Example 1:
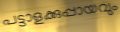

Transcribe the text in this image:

പട്ടാളക്കുപ്പായവും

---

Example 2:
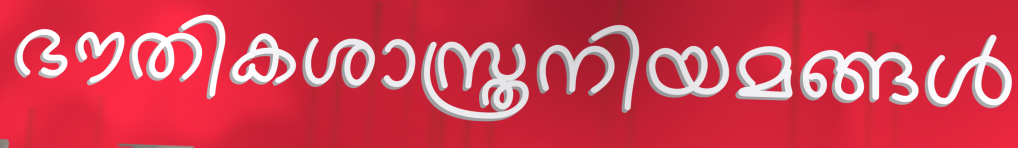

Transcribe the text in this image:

ഭൗതികശാസ്ത്രനിയമങ്ങൾ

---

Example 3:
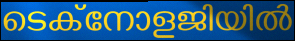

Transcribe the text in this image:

ടെക്‌നോളജിയിൽ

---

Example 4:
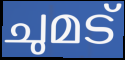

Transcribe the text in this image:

ചുമട്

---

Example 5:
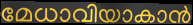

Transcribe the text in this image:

മേധാവിയാകാൻ